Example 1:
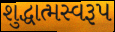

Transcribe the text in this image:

શુદ્ધાત્મસ્વરૂપ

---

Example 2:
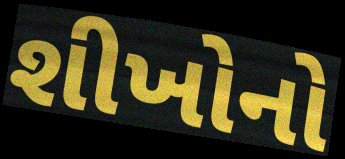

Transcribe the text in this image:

શીખોનો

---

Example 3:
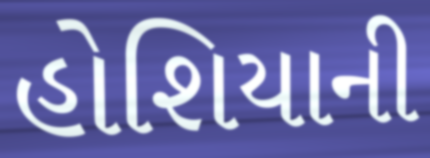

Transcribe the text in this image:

હોશિયાની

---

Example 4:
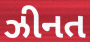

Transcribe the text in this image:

ઝીનત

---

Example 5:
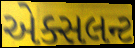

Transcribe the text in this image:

એક્સલન્ટ